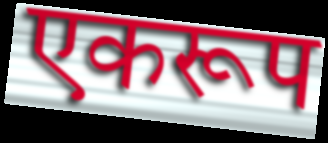
एकरूप